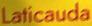
Laticauda